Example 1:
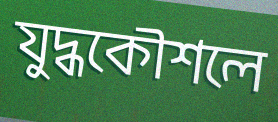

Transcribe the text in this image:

যুদ্ধকৌশলে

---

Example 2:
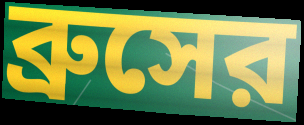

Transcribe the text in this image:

ব্রুসের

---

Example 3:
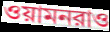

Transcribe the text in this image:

ওয়ামনরাও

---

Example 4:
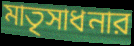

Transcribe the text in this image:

মাতৃসাধনার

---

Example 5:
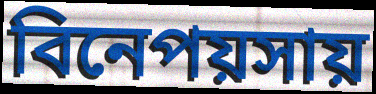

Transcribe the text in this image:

বিনেপয়সায়